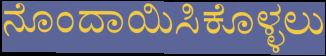
ನೊಂದಾಯಿಸಿಕೊಳ್ಳಲು